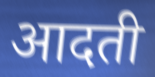
आदती